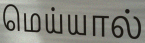
மெய்யால்